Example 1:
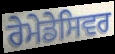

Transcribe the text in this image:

ਰੇਮੇਡੇਸਿਵਰ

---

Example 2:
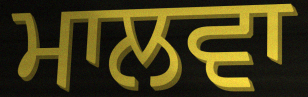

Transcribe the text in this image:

ਮਾਲਵਾ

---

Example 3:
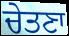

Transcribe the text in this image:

ਚੇਤਣਾ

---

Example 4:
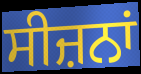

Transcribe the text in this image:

ਸੀਜ਼ਨਾਂ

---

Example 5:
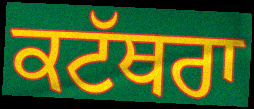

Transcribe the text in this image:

ਕਟੱਥਰਾ